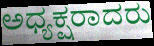
ಅಧ್ಯಕ್ಷರಾದರು